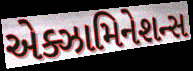
એક્ઝામિનેશન્સ